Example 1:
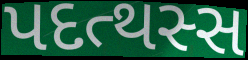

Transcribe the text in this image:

પદત્થસ્સ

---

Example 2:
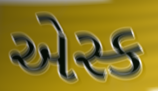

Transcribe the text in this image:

એસ્ક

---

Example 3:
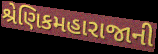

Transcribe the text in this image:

શ્રેણિકમહારાજાની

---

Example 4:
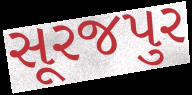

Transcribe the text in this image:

સૂરજપુર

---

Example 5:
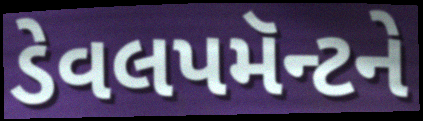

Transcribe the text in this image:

ડેવલપમૅન્ટને